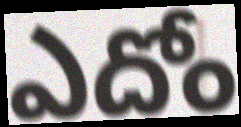
ఎదోం